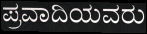
ಪ್ರವಾದಿಯವರು